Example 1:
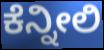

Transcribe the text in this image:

ಕೆನ್ನೀಲಿ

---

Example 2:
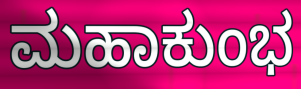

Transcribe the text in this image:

ಮಹಾಕುಂಭ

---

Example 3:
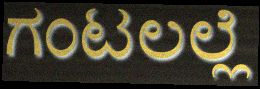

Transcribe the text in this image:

ಗಂಟಲಲ್ಲೆ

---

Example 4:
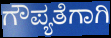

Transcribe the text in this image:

ಗೌಪ್ಯತೆಗಾಗಿ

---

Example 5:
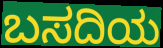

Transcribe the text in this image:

ಬಸದಿಯ